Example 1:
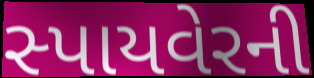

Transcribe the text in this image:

સ્પાયવેરની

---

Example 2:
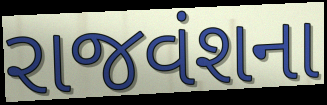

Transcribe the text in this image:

રાજવંશના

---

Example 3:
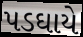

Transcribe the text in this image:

પડઘાયે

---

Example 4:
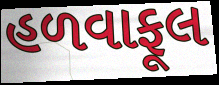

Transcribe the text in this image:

હળવાફૂલ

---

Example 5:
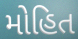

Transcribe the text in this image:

મોહિત